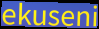
ekuseni